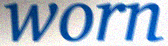
worn